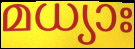
മധ്യാഃ